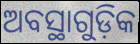
ଅବସ୍ଥାଗୁଡ଼ିକ